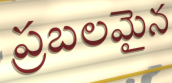
ప్రబలమైన